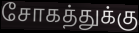
சோகத்துக்கு